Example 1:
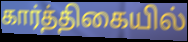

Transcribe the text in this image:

கார்த்திகையில்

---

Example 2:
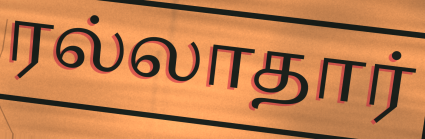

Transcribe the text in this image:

ரல்லாதார்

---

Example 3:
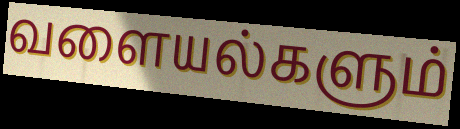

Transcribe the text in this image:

வளையல்களும்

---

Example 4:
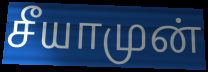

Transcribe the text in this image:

சீயாமுன்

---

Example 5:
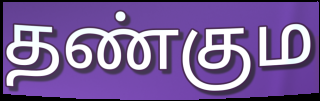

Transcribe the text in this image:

தண்கும